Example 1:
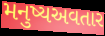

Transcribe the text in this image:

મનુષ્યઅવતાર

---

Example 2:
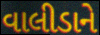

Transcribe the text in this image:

વાલીડાને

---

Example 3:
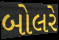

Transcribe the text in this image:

બોલરે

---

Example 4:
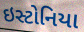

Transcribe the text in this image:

ઇસ્ટોનિયા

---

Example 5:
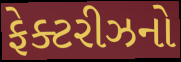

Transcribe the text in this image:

ફેક્ટરીઝનો